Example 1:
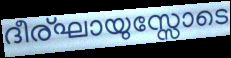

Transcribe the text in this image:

ദീര്ഘായുസ്സോടെ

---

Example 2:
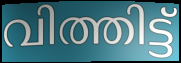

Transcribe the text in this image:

വിത്തിട്ട്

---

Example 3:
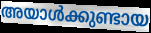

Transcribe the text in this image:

അയാൾക്കുണ്ടായ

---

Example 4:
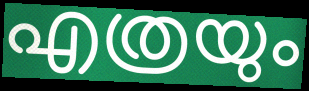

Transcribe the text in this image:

എത്രയും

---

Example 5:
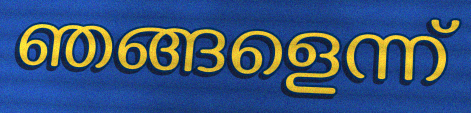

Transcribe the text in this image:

ഞങ്ങളെന്ന്